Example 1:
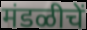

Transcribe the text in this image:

मंडळीचें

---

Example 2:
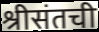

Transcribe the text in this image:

श्रीसंतची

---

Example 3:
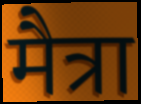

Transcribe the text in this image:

मैत्रा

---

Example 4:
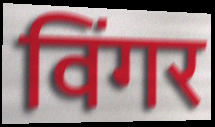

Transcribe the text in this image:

विंगर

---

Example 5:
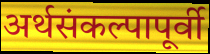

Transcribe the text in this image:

अर्थसंकल्पापूर्वी